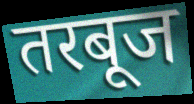
तरबूज